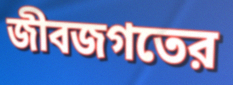
জীবজগতের